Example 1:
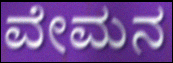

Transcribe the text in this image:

ವೇಮನ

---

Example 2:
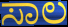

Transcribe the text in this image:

ಸಾಲ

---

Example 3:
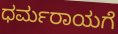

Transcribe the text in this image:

ಧರ್ಮರಾಯಗೆ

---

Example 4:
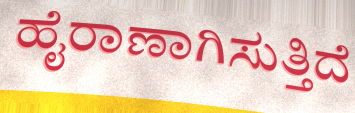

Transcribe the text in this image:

ಹೈರಾಣಾಗಿಸುತ್ತಿದೆ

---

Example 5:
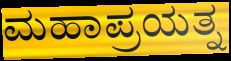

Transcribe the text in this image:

ಮಹಾಪ್ರಯತ್ನ